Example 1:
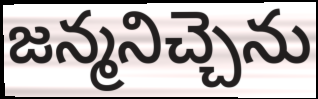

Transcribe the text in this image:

జన్మనిచ్చెను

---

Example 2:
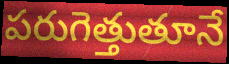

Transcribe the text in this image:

పరుగెత్తుతూనే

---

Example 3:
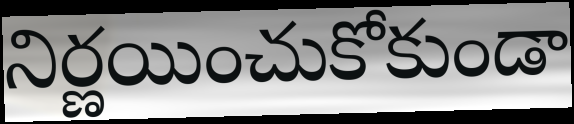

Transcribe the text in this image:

నిర్ణయించుకోకుండా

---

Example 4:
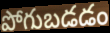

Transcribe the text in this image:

పోగుబడడం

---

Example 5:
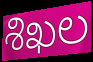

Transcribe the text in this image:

శిఖల